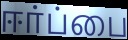
ஈர்ப்பை